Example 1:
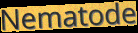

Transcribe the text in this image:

Nematode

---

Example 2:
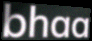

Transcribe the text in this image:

bhaa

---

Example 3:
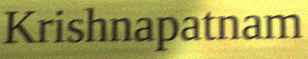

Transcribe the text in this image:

Krishnapatnam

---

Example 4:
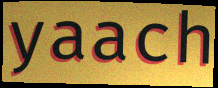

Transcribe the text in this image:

yaach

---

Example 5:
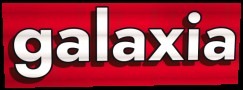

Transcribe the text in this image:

galaxia